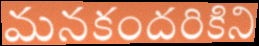
మనకందరికిని